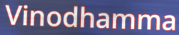
Vinodhamma